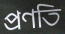
প্ৰণতি